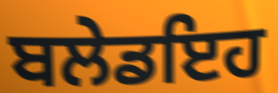
ਬਲੇਡਇਹ